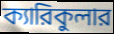
ক্যারিকুলার